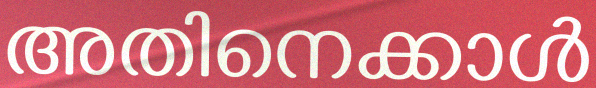
അതിനെക്കാൾ